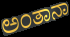
ಅಂತಾನಾ